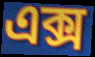
এক্স